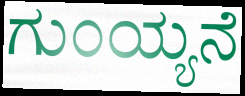
ಗುಂಯ್ಯನೆ